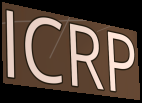
ICRP